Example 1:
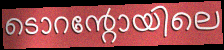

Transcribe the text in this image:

ടൊറന്റോയിലെ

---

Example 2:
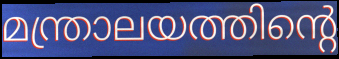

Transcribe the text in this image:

മന്ത്രാലയത്തിന്റെ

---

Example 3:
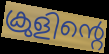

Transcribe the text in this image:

ക്രുളിന്റെ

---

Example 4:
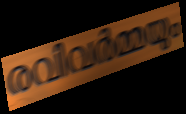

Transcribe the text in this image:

രവിവർമ്മയും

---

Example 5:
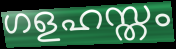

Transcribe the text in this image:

ഗളഹസ്തം